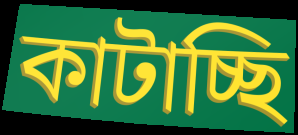
কাটাচ্ছি